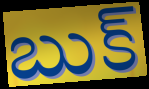
బుక్